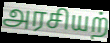
அரசியற்